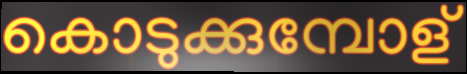
കൊടുക്കുമ്പോള്